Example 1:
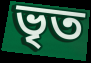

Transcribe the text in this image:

ভৃত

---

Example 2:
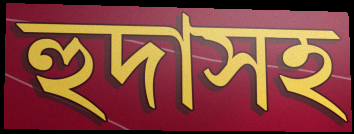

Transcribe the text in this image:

হুদাসহ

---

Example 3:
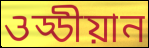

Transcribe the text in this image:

ওড্ডীয়ান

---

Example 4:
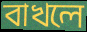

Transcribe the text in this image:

বাখলে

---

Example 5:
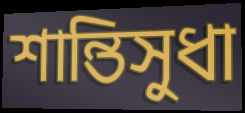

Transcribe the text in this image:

শান্তিসুধা